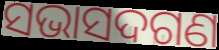
ସଭାସଦଗଣ